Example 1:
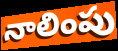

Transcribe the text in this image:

నాలింపు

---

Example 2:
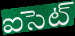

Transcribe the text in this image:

ఐసెట్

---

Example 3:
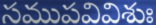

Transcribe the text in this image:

సముపవివిశుః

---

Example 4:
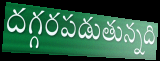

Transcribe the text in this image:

దగ్గరపడుతున్నది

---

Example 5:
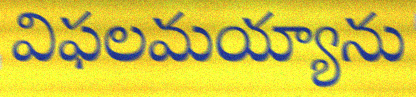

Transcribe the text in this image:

విఫలమయ్యాను